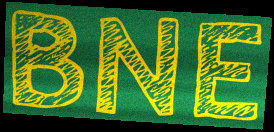
BNE